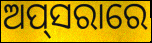
ଅପ୍‌ସରାରେ